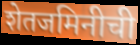
शेतजमिनीची